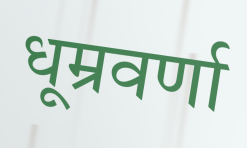
धूम्रवर्णा